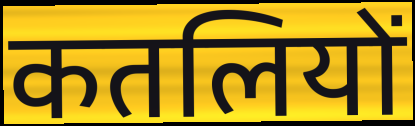
कतलियों